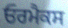
ਓਰਮੈਕਸ